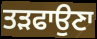
ਤੜਫਾਉਣਾ